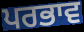
ਪਰਭਾਵ